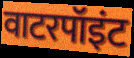
वाटरपॉइंट